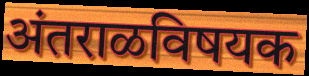
अंतराळविषयक